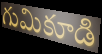
గుమికూడి